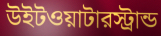
উইটওয়াটারস্ট্রান্ড